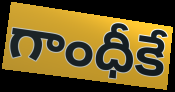
గాంధీకే